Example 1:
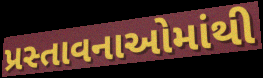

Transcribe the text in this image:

પ્રસ્તાવનાઓમાંથી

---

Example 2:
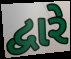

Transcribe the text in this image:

દ્વારે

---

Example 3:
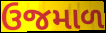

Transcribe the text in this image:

ઉજમાળ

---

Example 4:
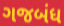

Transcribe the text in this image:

ગજબંધ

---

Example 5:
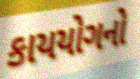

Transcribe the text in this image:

કાયયોગનો